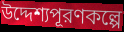
উদ্দেশ্যপূরণকল্পে